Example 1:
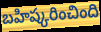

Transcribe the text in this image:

బహిష్కరించింది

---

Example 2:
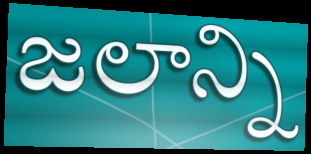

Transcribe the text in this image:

జలాన్ని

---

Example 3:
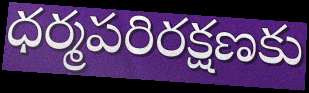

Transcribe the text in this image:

ధర్మపరిరక్షణకు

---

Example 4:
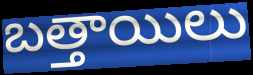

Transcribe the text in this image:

బత్తాయిలు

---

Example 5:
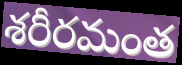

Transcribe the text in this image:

శరీరమంత